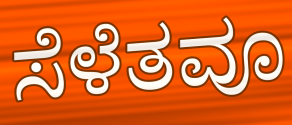
ಸೆಳೆತವೂ